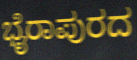
ಭೈರಾಪುರದ